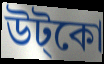
উট্কো